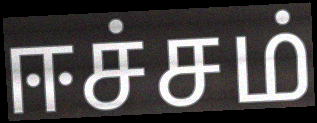
ஈச்சம்